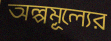
অল্পমূল্যের